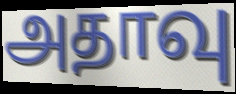
அதாவு